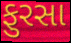
ફુરસા